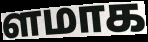
ளமாக